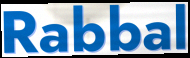
Rabbal